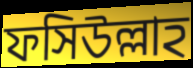
ফসিউল্লাহ